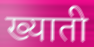
ख्याती